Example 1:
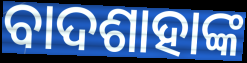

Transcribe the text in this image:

ବାଦଶାହାଙ୍କ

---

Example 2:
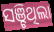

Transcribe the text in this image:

ସଞ୍ଚିଥିଲା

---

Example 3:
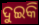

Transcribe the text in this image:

ଦୁଇକି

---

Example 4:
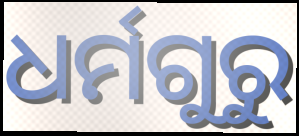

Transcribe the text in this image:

ଧର୍ମଗୁରୁ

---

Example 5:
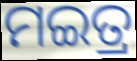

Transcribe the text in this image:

ମଇତ୍ର